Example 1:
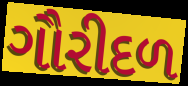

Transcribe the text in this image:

ગૌરીદળ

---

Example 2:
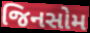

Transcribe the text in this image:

જિનસોમ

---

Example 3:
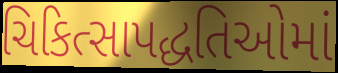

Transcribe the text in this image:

ચિકિત્સાપદ્ધતિઓમાં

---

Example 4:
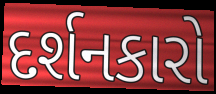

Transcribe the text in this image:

દર્શનકારો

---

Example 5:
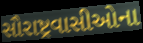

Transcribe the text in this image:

સૌરાષ્ટ્રવાસીઓના